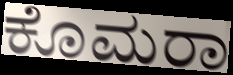
ಕೊಮರಾ